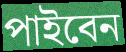
পাইবেন